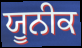
ਯੂਨੀਕ